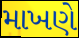
માખણે